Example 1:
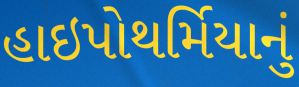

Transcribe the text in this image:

હાઇપોથર્મિયાનું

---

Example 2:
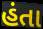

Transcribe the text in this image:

હંતા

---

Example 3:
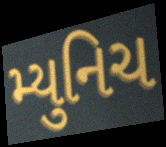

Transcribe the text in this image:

મ્યુનિચ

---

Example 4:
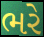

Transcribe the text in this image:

ભરે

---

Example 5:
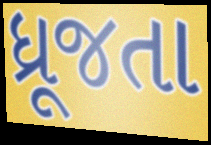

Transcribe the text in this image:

ધ્રૂજતા